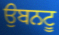
ਉਬਨਟੂ